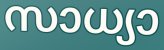
സാധ്യാ